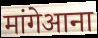
मांगेआना